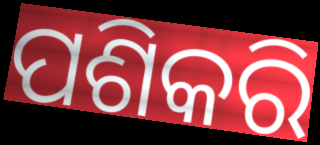
ପଶିକରି